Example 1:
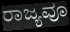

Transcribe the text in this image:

ರಾಜ್ಯವೂ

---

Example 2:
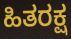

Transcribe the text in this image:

ಹಿತರಕ್ಷ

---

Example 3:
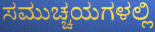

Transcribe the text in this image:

ಸಮುಚ್ಚಯಗಳಲ್ಲಿ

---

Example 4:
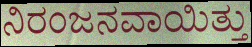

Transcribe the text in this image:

ನಿರಂಜನವಾಯಿತ್ತು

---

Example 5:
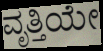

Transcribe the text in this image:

ವೃತ್ತಿಯೇ